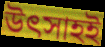
উৎসাহই